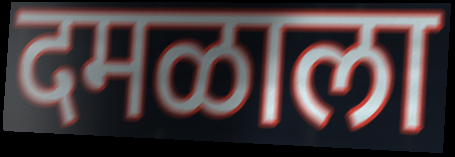
दमळाला